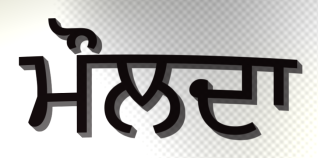
ਮੌਲਦਾ